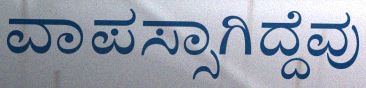
ವಾಪಸ್ಸಾಗಿದ್ದೆವು